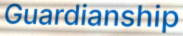
Guardianship